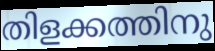
തിളക്കത്തിനു